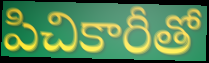
పిచికారీతో